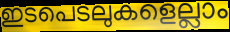
ഇടപെടലുകളെല്ലാം